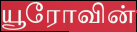
யூரோவின்